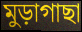
মুড়াগাছা